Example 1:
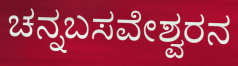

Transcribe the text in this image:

ಚನ್ನಬಸವೇಶ್ವರನ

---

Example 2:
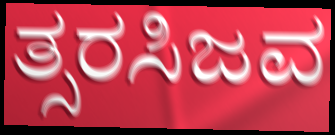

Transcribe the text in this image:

ತ್ಸರಸಿಜವ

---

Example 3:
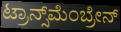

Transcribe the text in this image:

ಟ್ರಾನ್ಸ್‌ಮೆಂಬ್ರೇನ್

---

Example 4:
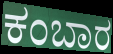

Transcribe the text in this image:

ಕಂಬಾರ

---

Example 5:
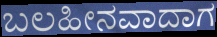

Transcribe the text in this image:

ಬಲಹೀನವಾದಾಗ